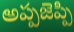
అప్పజెప్పి